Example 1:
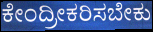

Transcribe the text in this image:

ಕೇಂದ್ರೀಕರಿಸಬೇಕು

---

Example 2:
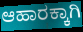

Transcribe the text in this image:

ಆಹಾರಕ್ಕಾಗಿ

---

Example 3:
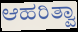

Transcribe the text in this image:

ಆಹರಿತ್ವಾ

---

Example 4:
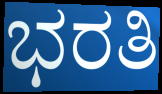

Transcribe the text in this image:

ಭರತಿ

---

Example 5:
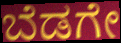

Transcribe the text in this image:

ಬೆಡಗೇ